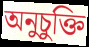
অনুচুক্তি